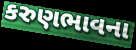
કરુણભાવના